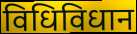
विधिविधान